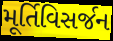
મૂર્તિવિસર્જન